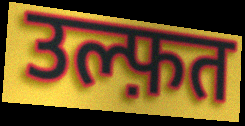
उल्फ़त